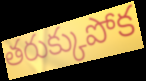
తరుక్కుపోక